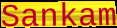
Sankam